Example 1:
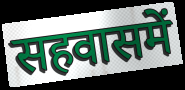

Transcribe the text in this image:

सहवासमें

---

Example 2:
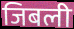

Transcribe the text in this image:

जिबली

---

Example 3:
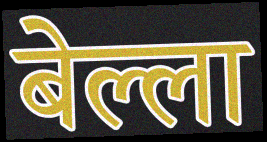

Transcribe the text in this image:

बेल्ला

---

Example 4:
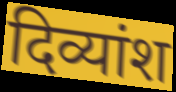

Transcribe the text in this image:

दिव्यांश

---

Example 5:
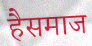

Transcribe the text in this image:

हैसमाज